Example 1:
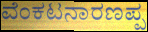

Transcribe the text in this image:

ವೆಂಕಟನಾರಣಪ್ಪ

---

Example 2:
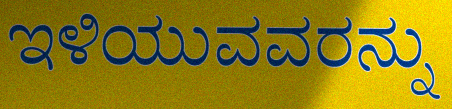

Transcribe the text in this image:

ಇಳಿಯುವವರನ್ನು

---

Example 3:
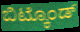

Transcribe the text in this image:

ಬಿಟ್ಕೊಂಡ್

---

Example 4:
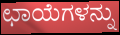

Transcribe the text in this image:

ಛಾಯೆಗಳನ್ನು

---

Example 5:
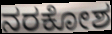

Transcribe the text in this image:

ನರಕೋಶ